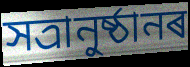
সত্ৰানুষ্ঠানৰ